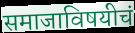
समाजाविषयीचं